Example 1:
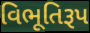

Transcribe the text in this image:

વિભૂતિરૂપ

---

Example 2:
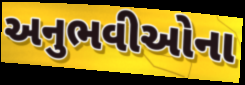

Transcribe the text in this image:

અનુભવીઓના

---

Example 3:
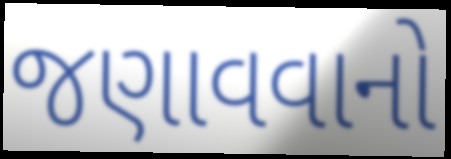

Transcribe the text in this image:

જણાવવાનો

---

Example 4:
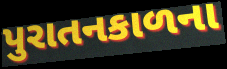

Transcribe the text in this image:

પુરાતનકાળના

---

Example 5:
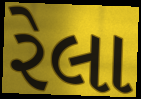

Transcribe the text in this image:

રેલા